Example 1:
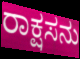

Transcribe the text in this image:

ರಾಕ್ಷಸನು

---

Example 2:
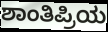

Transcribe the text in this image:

ಶಾಂತಿಪ್ರಿಯ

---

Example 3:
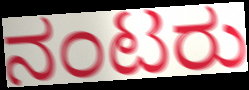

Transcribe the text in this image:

ನಂಟರು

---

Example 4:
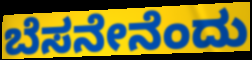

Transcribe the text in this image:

ಬೆಸನೇನೆಂದು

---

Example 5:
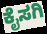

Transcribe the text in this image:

ಕೈಸಗಿ